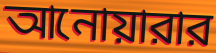
আনোয়ারার